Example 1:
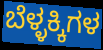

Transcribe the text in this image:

ಬೆಳ್ಳಕ್ಕಿಗಳ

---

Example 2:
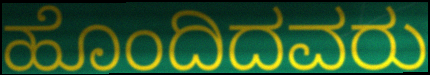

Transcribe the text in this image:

ಹೊಂದಿದವರು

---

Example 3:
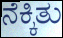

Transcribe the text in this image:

ನೆಕ್ಕಿತು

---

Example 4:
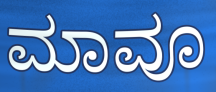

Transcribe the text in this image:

ಮಾವೂ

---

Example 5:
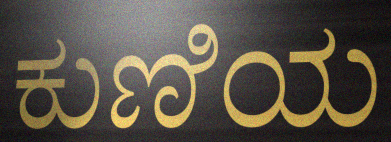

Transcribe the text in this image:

ಕುಣಿಯ